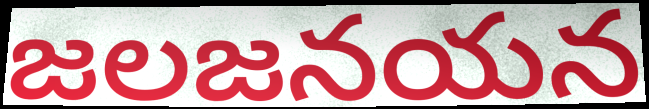
జలజనయన